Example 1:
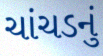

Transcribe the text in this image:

ચાંચડનું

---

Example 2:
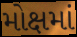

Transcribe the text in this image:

મોક્ષમાં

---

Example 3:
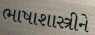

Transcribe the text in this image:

ભાષાશાસ્ત્રીને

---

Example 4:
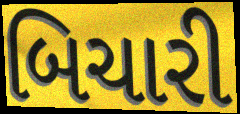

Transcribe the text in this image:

બિચારી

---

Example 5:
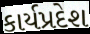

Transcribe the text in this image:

કાર્યપ્રદેશ